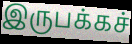
இருபக்கச்